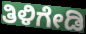
ತಿಳಿಗೇಡಿ